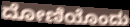
ದೋಣಿಯೊಂದು